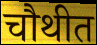
चौथीत